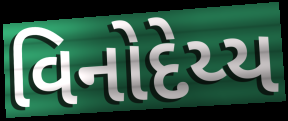
વિનોદેય્ય